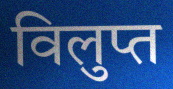
विलुप्त